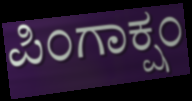
ಪಿಂಗಾಕ್ಷಂ